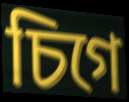
চিগে